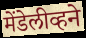
मेंडेलीव्हने